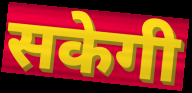
सकेगी